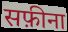
सफ़ीना